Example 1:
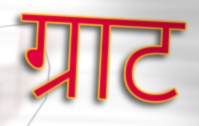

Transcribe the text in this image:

ग्राट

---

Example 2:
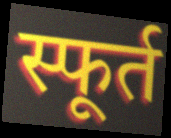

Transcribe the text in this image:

स्‍फूर्त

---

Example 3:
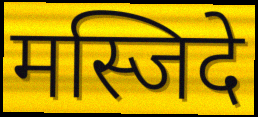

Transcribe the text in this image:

मस्जिदे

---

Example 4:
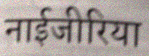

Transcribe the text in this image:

नाईजीरिया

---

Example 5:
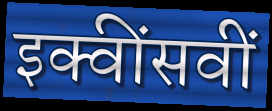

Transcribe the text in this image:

इक्वींसवीं